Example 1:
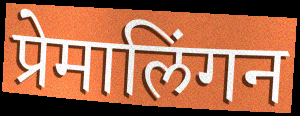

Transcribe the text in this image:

प्रेमालिंगन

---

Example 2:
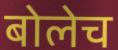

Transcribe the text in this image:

बोलेच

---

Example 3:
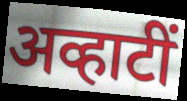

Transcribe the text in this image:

अव्हाटीं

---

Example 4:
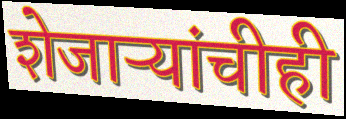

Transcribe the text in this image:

शेजाऱ्यांचीही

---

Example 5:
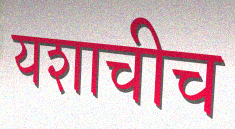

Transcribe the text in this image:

यशाचीच